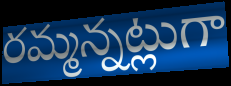
రమ్మన్నట్లుగా